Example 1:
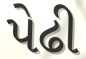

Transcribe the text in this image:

પેઢી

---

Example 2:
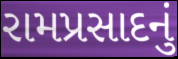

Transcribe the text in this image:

રામપ્રસાદનું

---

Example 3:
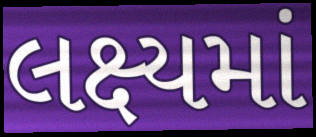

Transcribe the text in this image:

લક્ષ્યમાં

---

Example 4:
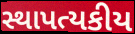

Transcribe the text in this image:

સ્થાપત્યકીય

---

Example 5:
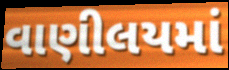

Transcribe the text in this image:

વાણીલયમાં